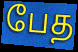
பேத